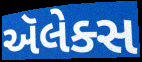
ઍલેક્સ